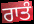
ਰਾਤੰ